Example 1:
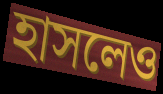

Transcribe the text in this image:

হাসলেও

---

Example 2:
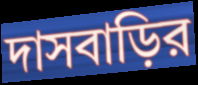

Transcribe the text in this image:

দাসবাড়ির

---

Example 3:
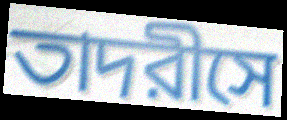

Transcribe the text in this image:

তাদরীসে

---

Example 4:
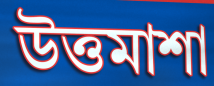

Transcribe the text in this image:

উত্তমাশা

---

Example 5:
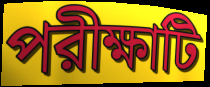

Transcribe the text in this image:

পরীক্ষাটি